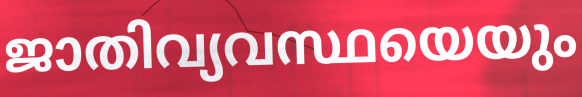
ജാതിവ്യവസ്ഥയെയും